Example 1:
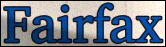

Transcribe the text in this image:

Fairfax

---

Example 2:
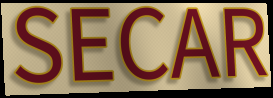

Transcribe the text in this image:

SECAR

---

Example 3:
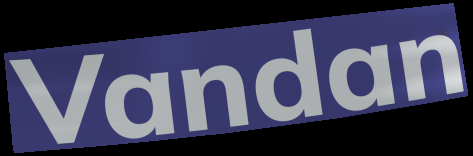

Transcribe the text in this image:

Vandan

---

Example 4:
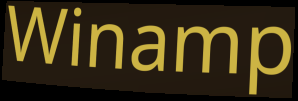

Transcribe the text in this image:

Winamp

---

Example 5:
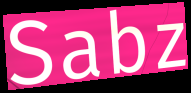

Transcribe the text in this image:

Sabz